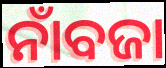
ନାଁବଜା